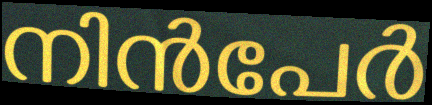
നിൻപേർ